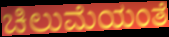
ಚಿಲುಮೆಯಂತೆ